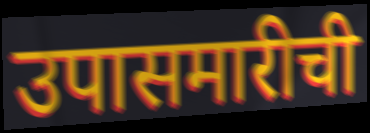
उपासमारीची